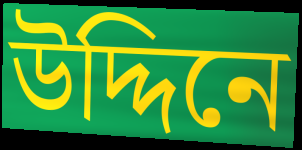
উদ্দিনে